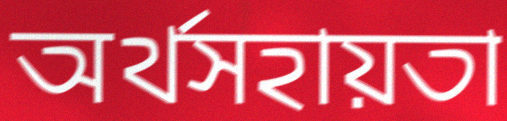
অর্থসহায়তা